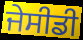
ਜੇਸੀਡੀ